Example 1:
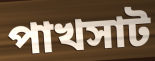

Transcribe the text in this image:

পাখসাট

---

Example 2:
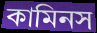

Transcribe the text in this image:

কামিনস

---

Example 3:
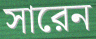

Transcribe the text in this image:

সারেন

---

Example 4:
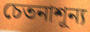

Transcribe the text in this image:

চেতনাশূন্য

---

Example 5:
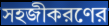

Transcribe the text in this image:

সহজীকরণের